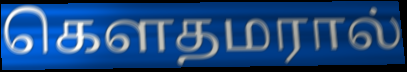
கௌதமரால்